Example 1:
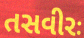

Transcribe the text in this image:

તસવીરઃ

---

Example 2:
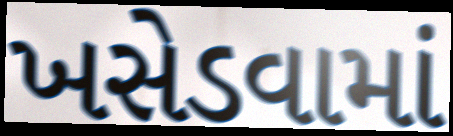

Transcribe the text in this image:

ખસેડવામાં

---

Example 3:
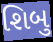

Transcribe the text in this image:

શિબુ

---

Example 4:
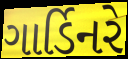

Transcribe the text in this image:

ગાર્ડિનરે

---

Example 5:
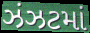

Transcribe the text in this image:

ઝંઝટમાં